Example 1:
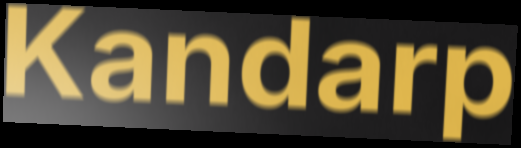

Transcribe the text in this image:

Kandarp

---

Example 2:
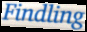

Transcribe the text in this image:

Findling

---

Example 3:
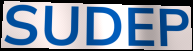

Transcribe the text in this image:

SUDEP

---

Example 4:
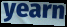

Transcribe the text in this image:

yearn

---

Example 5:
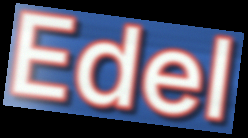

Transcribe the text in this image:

Edel